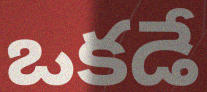
ఒకడే